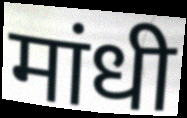
मांधी